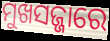
ମୁଖସଜ୍ଜାରେ